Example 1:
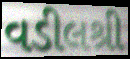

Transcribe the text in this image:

વડીલશ્રી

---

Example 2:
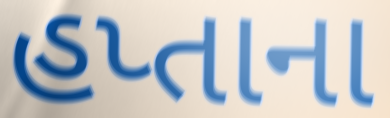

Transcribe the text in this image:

હપ્તાના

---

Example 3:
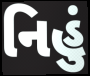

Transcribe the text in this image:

નિહું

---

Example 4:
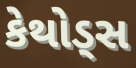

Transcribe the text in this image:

કેથોડ્સ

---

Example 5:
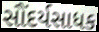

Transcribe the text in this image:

સૌંદર્યસાધક